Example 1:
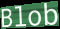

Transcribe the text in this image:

Blob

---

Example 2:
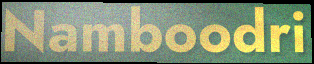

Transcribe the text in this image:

Namboodri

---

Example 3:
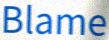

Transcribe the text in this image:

Blame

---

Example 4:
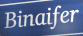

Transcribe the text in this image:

Binaifer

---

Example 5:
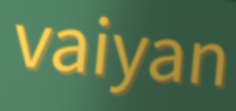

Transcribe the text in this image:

vaiyan